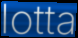
lotta